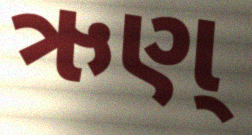
ઋણ્